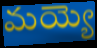
మయ్యె